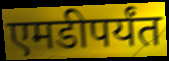
एमडीपर्यंत